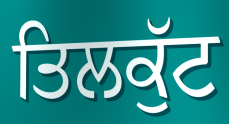
ਤਿਲਕੁੱਟ